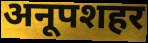
अनूपशहर